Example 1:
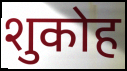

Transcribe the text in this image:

शुकोह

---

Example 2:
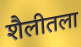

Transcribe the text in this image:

शैलीतला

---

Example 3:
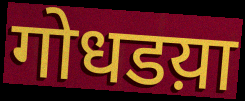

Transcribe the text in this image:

गोधडय़ा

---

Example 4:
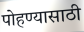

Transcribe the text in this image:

पोहण्यासाठी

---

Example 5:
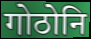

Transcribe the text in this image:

गोठोनि